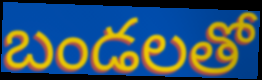
బండలతో